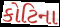
કોટિના